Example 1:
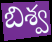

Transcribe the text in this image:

బిశ్వ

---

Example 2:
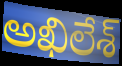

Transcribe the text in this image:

అఖిలేశ్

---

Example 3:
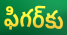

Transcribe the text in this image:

ఫిగర్‌కు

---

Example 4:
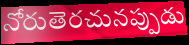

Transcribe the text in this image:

నోరుతెరచునప్పుడు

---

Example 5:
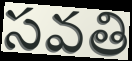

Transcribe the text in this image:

సవతి